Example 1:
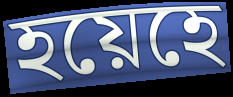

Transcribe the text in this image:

হয়েহে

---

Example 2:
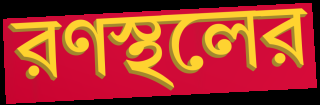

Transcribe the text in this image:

রণস্থলের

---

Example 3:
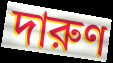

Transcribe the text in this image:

দারুণ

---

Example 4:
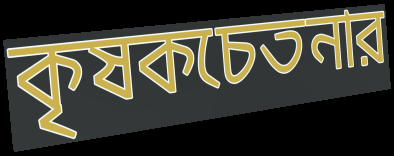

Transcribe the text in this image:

কৃষকচেতনার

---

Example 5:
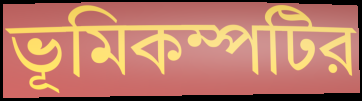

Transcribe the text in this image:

ভূমিকম্পটির